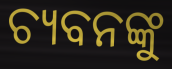
ଚ୍ୟବନଙ୍କୁ